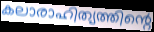
കലാരാഹിത്യത്തിന്റെ